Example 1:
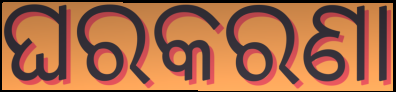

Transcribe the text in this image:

ଘରକରଣା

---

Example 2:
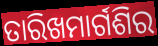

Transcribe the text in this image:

ତାରିଖମାର୍ଗଶିର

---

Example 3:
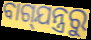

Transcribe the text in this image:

ବାଗ୍‌ଯନ୍ତ୍ରରୁ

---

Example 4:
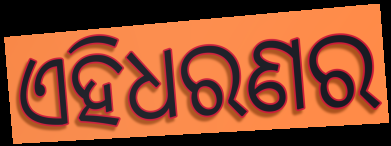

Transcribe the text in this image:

ଏହିଧରଣର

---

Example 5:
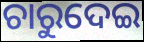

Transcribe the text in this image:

ଚାରୁଦେଇ